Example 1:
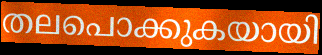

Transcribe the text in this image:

തലപൊക്കുകയായി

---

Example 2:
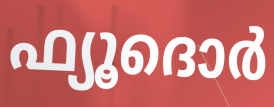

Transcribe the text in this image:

ഫ്യൂദൊർ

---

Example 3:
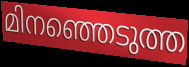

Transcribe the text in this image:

മിനഞ്ഞെടുത്ത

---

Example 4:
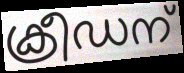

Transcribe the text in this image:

ക്രീഡന്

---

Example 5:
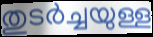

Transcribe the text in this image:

തുടർച്ചയുള്ള